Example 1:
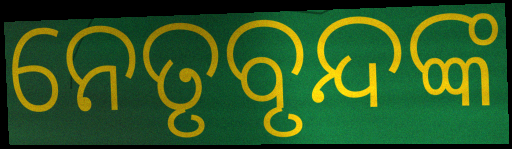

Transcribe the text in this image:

ନେତୃବୃନ୍ଦଙ୍କ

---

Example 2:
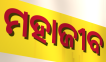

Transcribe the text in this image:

ମହାଜୀବ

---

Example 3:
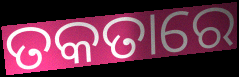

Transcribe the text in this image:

ତକତାରେ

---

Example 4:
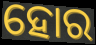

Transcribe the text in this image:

ହୋର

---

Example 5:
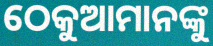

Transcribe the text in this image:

ଠେକୁଆମାନଙ୍କୁ